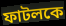
ফাটলকে